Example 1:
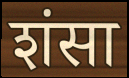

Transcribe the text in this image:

शंसा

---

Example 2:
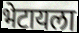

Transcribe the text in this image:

भेटायला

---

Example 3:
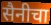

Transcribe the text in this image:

सैनीचा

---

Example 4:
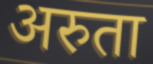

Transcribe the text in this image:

अरुता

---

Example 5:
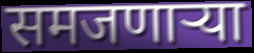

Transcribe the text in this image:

समजणाऱ्या